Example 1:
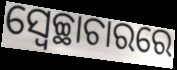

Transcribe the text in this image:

ସ୍ବେଚ୍ଛାଚାରରେ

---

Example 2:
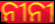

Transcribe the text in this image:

ନୀନୀ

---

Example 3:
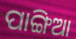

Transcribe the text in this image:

ପାଙ୍ଗିଆ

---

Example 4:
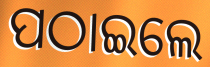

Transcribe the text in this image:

ପଠାଇଲେ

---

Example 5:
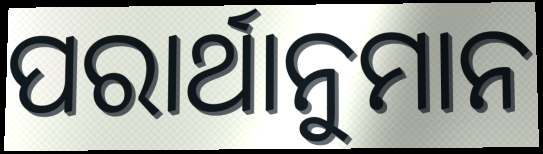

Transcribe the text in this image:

ପରାର୍ଥାନୁମାନ